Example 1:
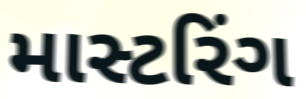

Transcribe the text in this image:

માસ્ટરિંગ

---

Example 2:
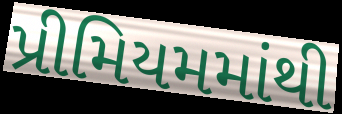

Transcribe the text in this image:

પ્રીમિયમમાંથી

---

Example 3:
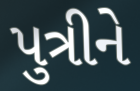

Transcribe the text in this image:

પુત્રીને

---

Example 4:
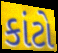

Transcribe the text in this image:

કાંટો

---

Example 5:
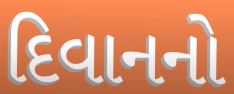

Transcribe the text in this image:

દિવાનનો